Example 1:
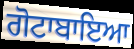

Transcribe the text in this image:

ਗੋਟਾਬਾਇਆ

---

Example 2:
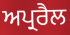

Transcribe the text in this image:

ਅਪ੍ਰਰੈਲ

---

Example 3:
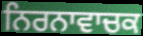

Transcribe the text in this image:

ਨਿਰਨਾਵਾਚਕ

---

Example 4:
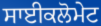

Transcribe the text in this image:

ਸਾਈਕਲੋਮੇਟ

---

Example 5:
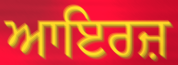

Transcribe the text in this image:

ਆਇਰਜ਼